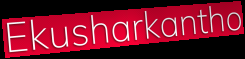
Ekusharkantho